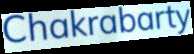
Chakrabarty